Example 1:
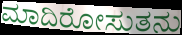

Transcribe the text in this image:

ಮಾದಿರೋಸುತನು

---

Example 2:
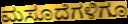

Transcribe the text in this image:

ಮಸೂದೆಗಳಿಗೂ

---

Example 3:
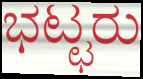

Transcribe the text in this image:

ಭಟ್ಟರು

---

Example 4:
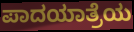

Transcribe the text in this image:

ಪಾದಯಾತ್ರೆಯ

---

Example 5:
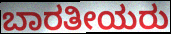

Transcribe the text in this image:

ಬಾರತೀಯರು